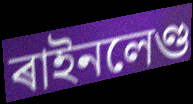
ৰাইনলেণ্ড